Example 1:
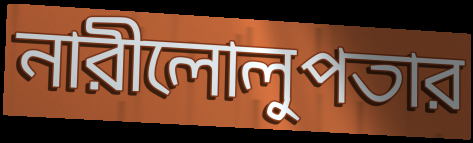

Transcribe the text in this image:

নারীলোলুপতার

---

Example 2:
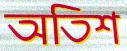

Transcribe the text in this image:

অতিশ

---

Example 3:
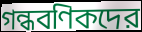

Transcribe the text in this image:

গন্ধবণিকদের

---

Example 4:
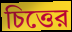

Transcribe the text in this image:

চিত্তের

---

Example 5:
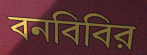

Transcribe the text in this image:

বনবিবির